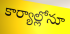
కార్యాల్లోనూ